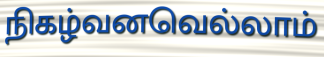
நிகழ்வனவெல்லாம்